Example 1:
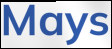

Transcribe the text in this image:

Mays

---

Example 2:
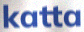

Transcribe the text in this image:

katta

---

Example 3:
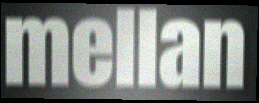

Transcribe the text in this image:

mellan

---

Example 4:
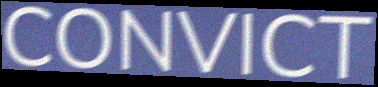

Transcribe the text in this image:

CONVICT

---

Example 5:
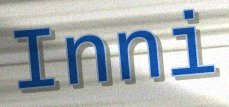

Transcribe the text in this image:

Inni